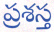
ప్రశస్త